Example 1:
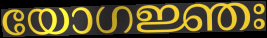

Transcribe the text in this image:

യോഗജ്ഞഃ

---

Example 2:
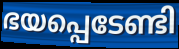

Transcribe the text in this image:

ഭയപ്പെടേണ്ടി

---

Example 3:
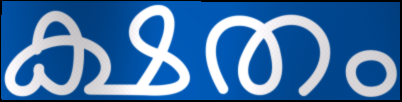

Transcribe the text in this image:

ക്ഷതം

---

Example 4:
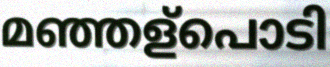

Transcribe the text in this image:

മഞ്ഞള്പൊടി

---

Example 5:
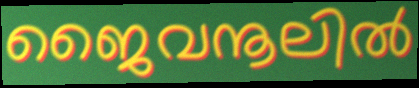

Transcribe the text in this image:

ജൈവനൂലിൽ